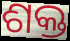
ଶକ୍ତ